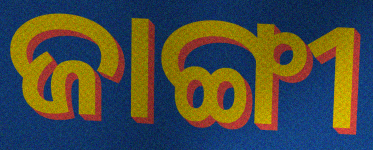
ଜାଙ୍ଗୀ